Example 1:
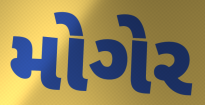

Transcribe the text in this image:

મોગેર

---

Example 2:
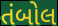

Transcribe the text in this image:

તંબોલ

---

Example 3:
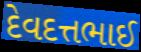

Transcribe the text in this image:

દેવદત્તભાઈ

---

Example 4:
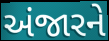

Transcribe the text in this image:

અંજારને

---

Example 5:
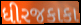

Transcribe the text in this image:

ધીરજકાકા